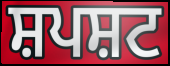
ਸ਼ਪਸ਼ਟ